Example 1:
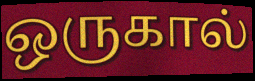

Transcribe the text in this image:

ஒருகால்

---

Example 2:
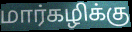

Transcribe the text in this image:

மார்கழிக்கு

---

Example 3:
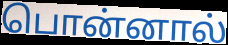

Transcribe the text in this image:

பொன்னால்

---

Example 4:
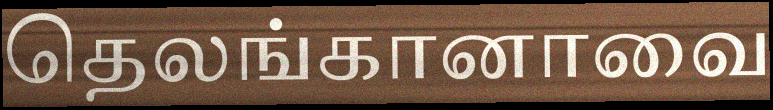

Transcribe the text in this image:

தெலங்கானாவை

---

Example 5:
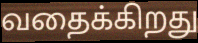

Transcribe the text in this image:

வதைக்கிறது